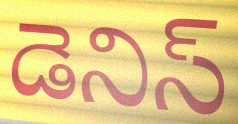
డెనిస్